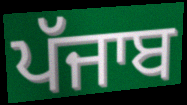
ਪੱਜਾਬ